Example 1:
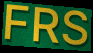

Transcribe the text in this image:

FRS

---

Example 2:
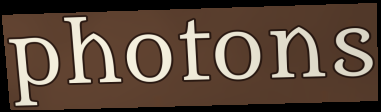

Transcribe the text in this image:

photons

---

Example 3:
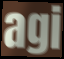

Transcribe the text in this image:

agi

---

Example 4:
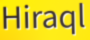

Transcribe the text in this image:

Hiraql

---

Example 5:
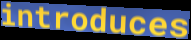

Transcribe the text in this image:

introduces